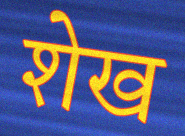
शेख